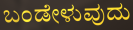
ಬಂಡೇಳುವುದು